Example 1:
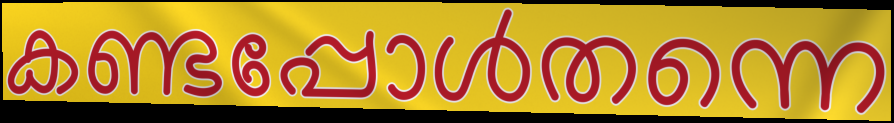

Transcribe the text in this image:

കണ്ടപ്പോൾതന്നെ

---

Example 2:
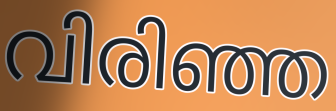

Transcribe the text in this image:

വിരിഞ്ഞ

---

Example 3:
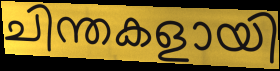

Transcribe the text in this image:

ചിന്തകളായി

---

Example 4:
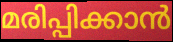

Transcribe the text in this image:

മരിപ്പിക്കാൻ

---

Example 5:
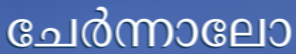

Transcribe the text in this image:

ചേർന്നാലോ